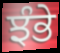
ਝੰਭੇ